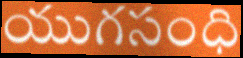
యుగసంధి